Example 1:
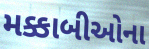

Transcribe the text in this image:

મક્કાબીઓના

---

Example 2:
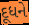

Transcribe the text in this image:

દૂધને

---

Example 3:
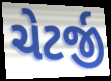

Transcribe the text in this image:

ચેટર્જી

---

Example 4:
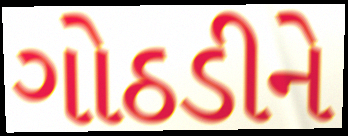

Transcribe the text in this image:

ગોઠડીને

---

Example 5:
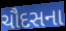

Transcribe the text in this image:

ચૌદસના